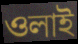
ওলাই